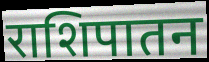
राशिपातन